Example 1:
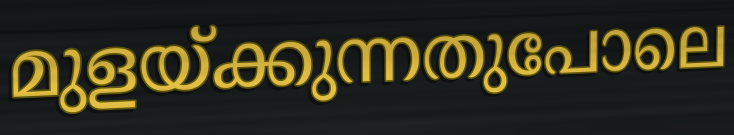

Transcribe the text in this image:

മുളയ്ക്കുന്നതുപോലെ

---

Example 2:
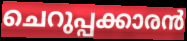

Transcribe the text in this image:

ചെറുപ്പക്കാരൻ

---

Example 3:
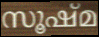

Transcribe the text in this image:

സൂഷ്മ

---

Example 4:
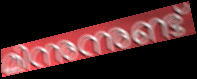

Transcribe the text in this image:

മിന്നുന്നുണ്ട്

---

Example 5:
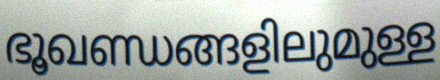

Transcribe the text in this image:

ഭൂഖണ്ഡങ്ങളിലുമുള്ള